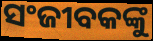
ସଂଜୀବକଙ୍କୁ